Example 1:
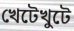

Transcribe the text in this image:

খেটেখুটে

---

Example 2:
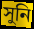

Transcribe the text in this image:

সুনি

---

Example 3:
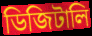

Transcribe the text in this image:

ডিজিটালি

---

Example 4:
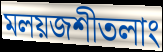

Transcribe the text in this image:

মলয়জশীতলাং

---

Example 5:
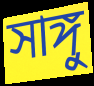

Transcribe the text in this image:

সাঙ্গু